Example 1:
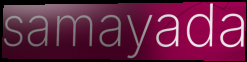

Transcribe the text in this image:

samayada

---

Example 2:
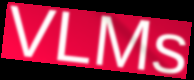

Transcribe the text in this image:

VLMs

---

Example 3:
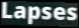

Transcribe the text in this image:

Lapses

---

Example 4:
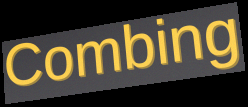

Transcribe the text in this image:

Combing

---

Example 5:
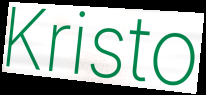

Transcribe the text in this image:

Kristo